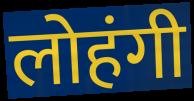
लोहंगी